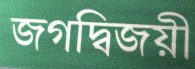
জগদ্বিজয়ী